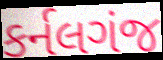
કર્નલગંજ